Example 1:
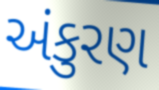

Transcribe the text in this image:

અંકુરણ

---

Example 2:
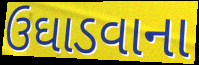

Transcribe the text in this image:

ઉઘાડવાના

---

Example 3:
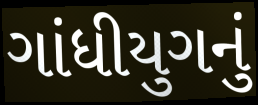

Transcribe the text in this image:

ગાંધીયુગનું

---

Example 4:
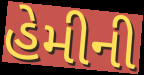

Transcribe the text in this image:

હેમીની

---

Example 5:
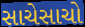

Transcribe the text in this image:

સાચેસાચો